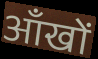
आँखों